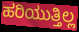
ಹರಿಯುತ್ತಿಲ್ಲ